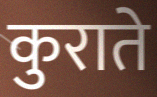
कुराते